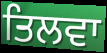
ਤਿਲਵਾ